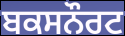
ਬਕਸਨੌਰਟ